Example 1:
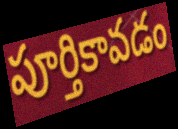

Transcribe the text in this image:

పూర్తికావడం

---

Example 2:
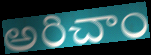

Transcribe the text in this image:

అరిచాం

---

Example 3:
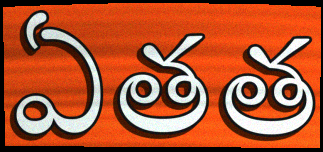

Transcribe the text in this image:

ఏతత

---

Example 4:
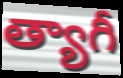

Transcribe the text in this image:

త్యాగీ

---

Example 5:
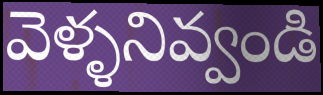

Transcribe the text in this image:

వెళ్ళనివ్వండి